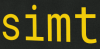
simt